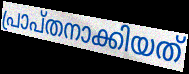
പ്രാപ്തനാക്കിയത്